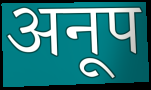
अनूप